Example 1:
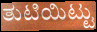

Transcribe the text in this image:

ತುಟಿಯಿಟ್ಟು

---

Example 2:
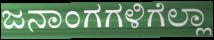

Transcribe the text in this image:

ಜನಾಂಗಗಳಿಗೆಲ್ಲಾ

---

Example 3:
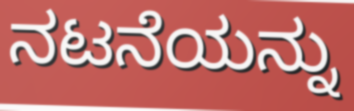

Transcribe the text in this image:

ನಟನೆಯನ್ನು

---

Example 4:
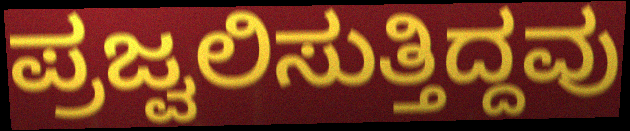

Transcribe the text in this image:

ಪ್ರಜ್ವಲಿಸುತ್ತಿದ್ದವು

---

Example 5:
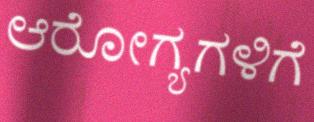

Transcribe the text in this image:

ಆರೋಗ್ಯಗಳಿಗೆ